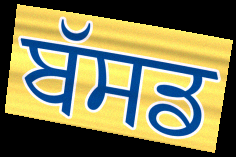
ਬੱਸਡ